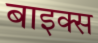
बाइक्स